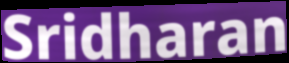
Sridharan